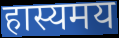
हास्यमय